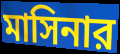
মাসিনার